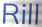
Rill